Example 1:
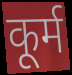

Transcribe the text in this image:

कूर्म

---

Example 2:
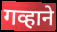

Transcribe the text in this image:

गव्हाने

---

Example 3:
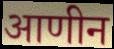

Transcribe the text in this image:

आणीन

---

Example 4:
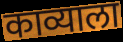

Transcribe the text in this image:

काव्याला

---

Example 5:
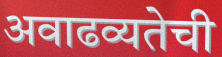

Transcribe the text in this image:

अवाढव्यतेची